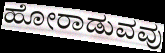
ಹೋರಾಡುವವು